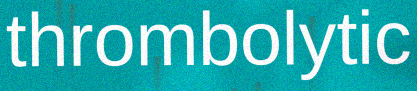
thrombolytic